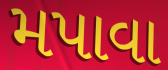
મપાવા